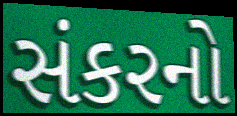
સંકરનો